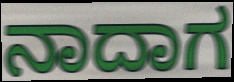
ನಾದಾಗ